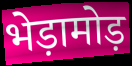
भेड़ामोड़